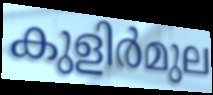
കുളിർമുല